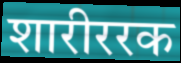
शारीररक